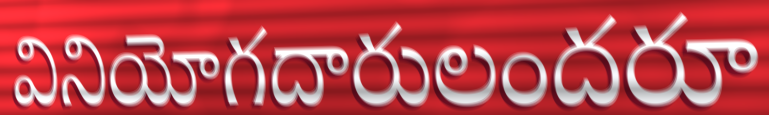
వినియోగదారులందరూ